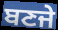
ਬਣਜੇ